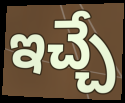
ఇచ్చే